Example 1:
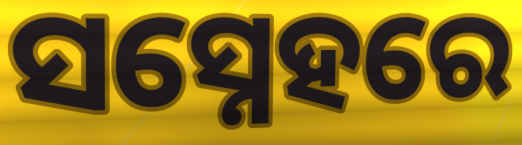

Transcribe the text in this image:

ସସ୍ନେହରେ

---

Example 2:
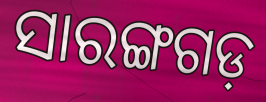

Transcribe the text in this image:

ସାରଙ୍ଗଗଡ଼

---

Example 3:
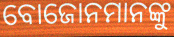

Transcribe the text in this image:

ବୋଜୋନମାନଙ୍କୁ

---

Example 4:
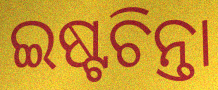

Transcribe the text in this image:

ଇଷ୍ଟଚିନ୍ତା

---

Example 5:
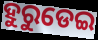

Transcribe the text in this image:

ହୁରୁଡେଇ